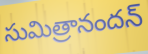
సుమిత్రానందన్